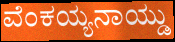
ವೆಂಕಯ್ಯನಾಯ್ಡು